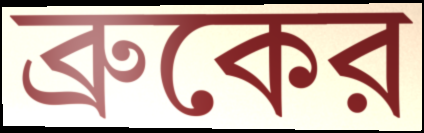
ব্রুকের